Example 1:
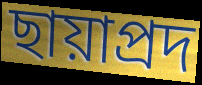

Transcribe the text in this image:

ছায়াপ্রদ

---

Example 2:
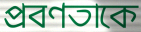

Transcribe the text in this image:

প্রবণতাকে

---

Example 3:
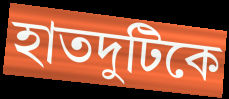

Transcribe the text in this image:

হাতদুটিকে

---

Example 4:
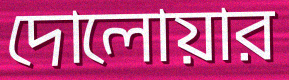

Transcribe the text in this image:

দোলোয়ার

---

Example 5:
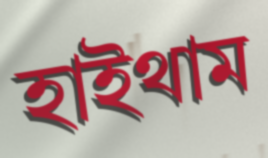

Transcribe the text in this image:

হাইথাম